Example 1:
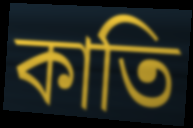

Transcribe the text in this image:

কাতি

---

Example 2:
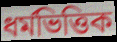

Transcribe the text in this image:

ধৰ্মভিত্তিক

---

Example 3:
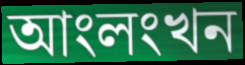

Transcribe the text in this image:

আংলংখন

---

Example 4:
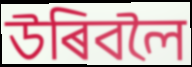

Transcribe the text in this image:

উৰিবলৈ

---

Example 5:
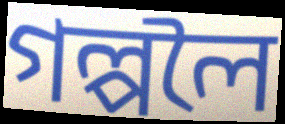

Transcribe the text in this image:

গল্পলৈ